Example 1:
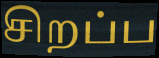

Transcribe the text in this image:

சிறப்ப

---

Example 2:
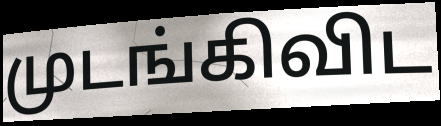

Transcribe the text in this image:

முடங்கிவிட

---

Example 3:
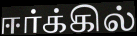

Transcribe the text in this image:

ஈர்க்கில்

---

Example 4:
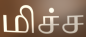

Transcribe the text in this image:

மிச்ச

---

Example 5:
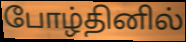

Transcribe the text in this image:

போழ்தினில்